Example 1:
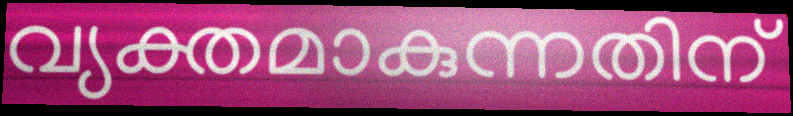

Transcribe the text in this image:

വ്യക്തമാകുന്നതിന്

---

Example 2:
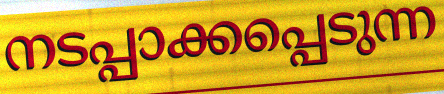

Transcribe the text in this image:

നടപ്പാക്കപ്പെടുന്ന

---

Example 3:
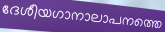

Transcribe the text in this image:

ദേശീയഗാനാലാപനത്തെ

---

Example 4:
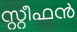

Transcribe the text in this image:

സ്റ്റീഫൻ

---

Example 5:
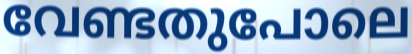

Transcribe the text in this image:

വേണ്ടതുപോലെ